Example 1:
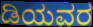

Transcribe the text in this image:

ಡಿಯವರ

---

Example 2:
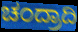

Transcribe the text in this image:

ಚಂದ್ರಾದಿ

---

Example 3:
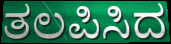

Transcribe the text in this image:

ತಲಪಿಸಿದ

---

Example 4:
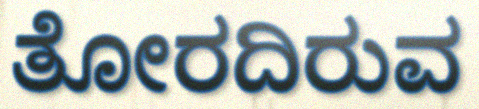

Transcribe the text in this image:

ತೋರದಿರುವ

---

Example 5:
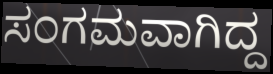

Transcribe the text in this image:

ಸಂಗಮವಾಗಿದ್ದ